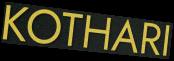
KOTHARI